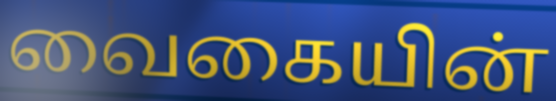
வைகையின்